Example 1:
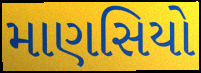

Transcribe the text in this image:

માણસિયો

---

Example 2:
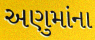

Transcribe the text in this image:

અણુમાંના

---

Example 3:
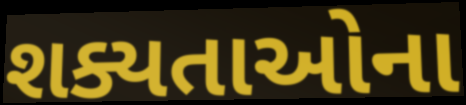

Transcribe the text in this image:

શક્યતાઓના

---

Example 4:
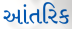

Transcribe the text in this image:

આંતરિક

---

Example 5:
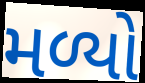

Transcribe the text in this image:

મળ્યો